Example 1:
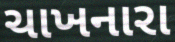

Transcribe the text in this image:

ચાખનારા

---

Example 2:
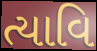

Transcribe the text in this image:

ત્યાવિ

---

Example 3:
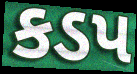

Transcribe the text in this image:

કડપ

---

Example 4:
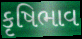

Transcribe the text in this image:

કૃષિભાવ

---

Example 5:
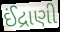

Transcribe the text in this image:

ઈંદ્રાણી